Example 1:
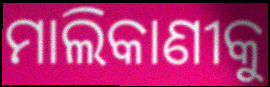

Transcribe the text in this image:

ମାଲିକାଣୀକୁ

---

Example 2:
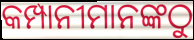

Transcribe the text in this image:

କମ୍ପାନୀମାନଙ୍କଠୁ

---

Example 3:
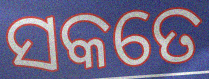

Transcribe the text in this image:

ସକତେ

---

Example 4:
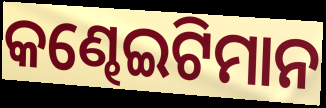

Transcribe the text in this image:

କଣ୍ଢେଇଟିମାନ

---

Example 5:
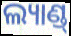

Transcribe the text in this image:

ଲ୍ୟାଣ୍ଡ୍